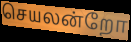
செயலன்றோ